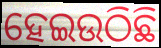
ହେଇଉଠିଛି